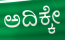
ಅದಿಕ್ಕೇ